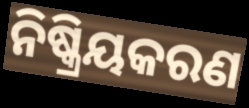
ନିଷ୍କ୍ରିୟକରଣ